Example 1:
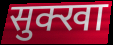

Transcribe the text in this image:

सुक्खा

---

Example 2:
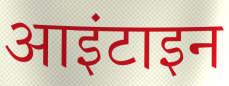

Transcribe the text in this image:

आइंटाइन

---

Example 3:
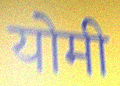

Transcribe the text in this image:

योमी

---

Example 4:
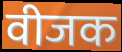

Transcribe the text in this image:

वीजक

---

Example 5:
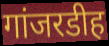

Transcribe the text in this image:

गांजरडीह